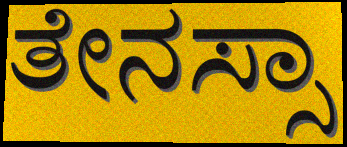
ತೇನಸ್ಸಾ